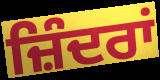
ਜ਼ਿੰਦਰਾਂ